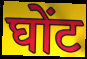
घोंट